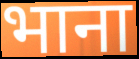
भाना